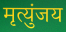
मृत्युंजय